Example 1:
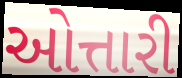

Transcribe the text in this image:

ઓત્તારી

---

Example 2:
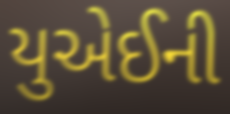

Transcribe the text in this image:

યુએઈની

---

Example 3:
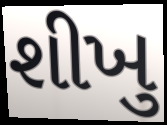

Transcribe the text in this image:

શીખુ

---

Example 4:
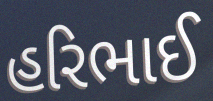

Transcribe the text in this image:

હરિભાઈ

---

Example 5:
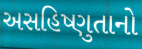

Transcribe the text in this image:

અસહિષ્ણુતાનો